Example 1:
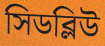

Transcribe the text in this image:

সিডব্লিউ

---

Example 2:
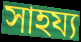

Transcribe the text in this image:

সাহয্য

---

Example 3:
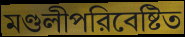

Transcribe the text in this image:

মণ্ডলীপরিবেষ্টিত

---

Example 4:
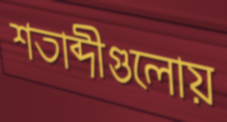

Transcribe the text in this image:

শতাব্দীগুলোয়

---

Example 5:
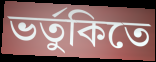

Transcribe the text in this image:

ভর্তুকিতে